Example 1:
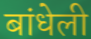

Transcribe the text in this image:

बांधेली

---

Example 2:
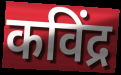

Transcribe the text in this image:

कविंद्र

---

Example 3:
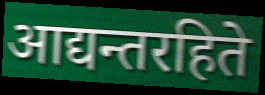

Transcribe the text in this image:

आद्यन्तरहिते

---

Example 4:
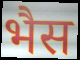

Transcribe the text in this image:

भैस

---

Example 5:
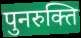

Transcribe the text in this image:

पुनरुक्ति